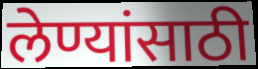
लेण्यांसाठी